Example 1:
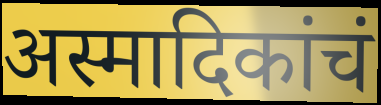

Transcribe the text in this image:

अस्मादिकांचं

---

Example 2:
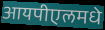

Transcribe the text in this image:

आयपीएलमधे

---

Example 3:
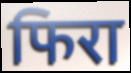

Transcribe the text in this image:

फिरा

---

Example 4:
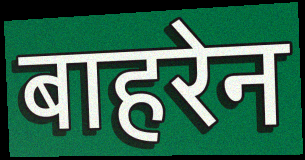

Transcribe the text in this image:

बाहरेन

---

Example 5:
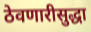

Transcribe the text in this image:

ठेवणारीसुद्धा